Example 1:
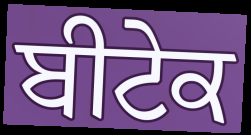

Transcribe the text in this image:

ਬੀਟੇਕ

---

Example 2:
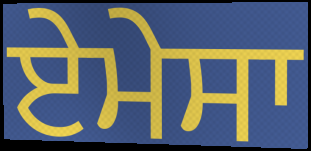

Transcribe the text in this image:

ਏਮੇਸਾ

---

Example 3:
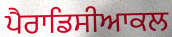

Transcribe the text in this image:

ਪੈਰਾਡਿਸੀਆਕਲ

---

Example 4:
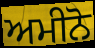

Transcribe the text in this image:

ਅਮੀਨੋ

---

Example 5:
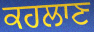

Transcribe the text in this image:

ਕਹਲਾਣ